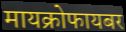
मायक्रोफायबर